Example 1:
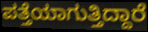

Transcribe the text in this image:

ಪತ್ತೆಯಾಗುತ್ತಿದ್ದಾರೆ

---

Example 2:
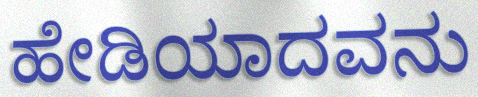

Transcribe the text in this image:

ಹೇಡಿಯಾದವನು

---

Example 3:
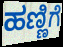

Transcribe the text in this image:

ಹಣ್ಣಿಗೆ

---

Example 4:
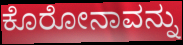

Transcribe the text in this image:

ಕೊರೋನಾವನ್ನು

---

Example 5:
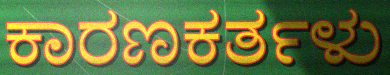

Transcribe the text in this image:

ಕಾರಣಕರ್ತಳು